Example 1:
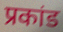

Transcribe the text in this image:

प्रकांड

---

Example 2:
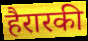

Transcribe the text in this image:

हैरारकी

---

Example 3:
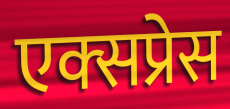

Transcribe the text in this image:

एक्‍सप्रेस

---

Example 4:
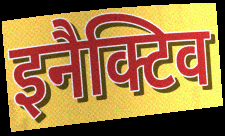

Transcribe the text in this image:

इनैक्टिव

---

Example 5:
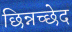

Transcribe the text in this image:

छिन्नच्छेद